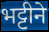
भट्टीने